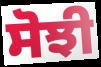
ਸੋਝੀ